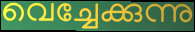
വെച്ചേക്കുന്നു